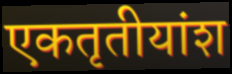
एकतृतीयांश